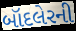
બૉદલેરની